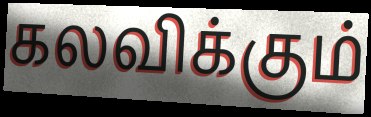
கலவிக்கும்